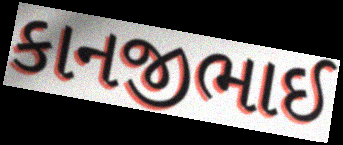
કાનજીભાઈ